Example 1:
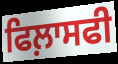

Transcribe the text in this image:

ਫਿਲ਼ਾਸਫੀ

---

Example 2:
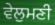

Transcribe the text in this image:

ਵੇਲੁਮਣੀ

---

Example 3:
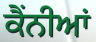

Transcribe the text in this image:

ਕੈਂਨੀਆਂ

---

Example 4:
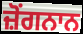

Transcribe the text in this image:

ਜ਼ੋਂਗਨਾਨ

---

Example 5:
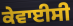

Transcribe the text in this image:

ਕੇਵਾਈਸੀ